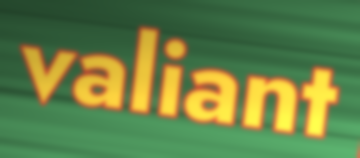
valiant